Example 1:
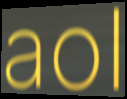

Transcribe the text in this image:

aol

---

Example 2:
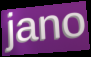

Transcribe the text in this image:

jano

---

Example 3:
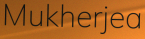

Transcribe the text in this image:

Mukherjea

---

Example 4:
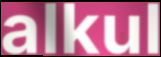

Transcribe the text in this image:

alkul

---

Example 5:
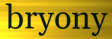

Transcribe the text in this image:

bryony